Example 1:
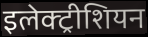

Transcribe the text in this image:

इलेक्ट्रीशियन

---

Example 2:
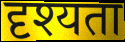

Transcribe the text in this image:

दृश्यता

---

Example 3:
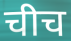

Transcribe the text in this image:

चीच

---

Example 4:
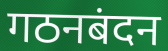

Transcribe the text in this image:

गठनबंदन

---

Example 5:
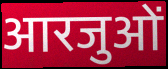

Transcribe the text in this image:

आरजुओं